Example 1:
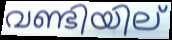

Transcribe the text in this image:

വണ്ടിയില്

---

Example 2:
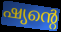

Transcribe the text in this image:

ഷ്യന്റെ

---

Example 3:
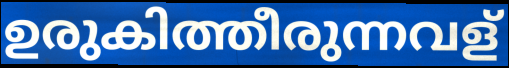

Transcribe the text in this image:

ഉരുകിത്തീരുന്നവള്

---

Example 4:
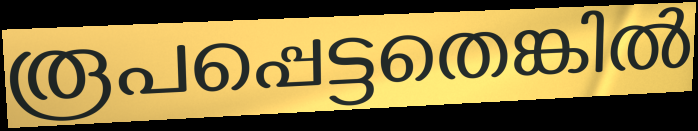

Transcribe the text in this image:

രൂപപ്പെട്ടതെങ്കിൽ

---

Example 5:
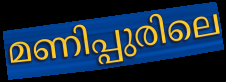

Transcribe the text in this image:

മണിപ്പുരിലെ